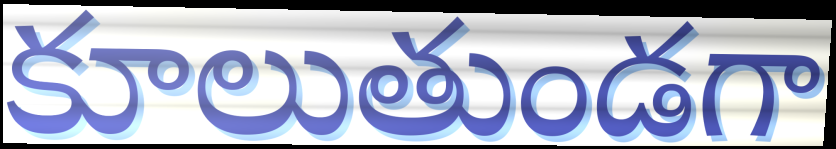
కూలుతుండగా